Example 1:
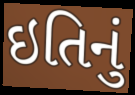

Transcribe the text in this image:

ઇતિનું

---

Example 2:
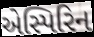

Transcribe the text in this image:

એસ્પિરિન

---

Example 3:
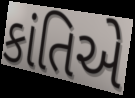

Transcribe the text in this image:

કાંતિએ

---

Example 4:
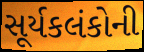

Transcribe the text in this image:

સૂર્યકલંકોની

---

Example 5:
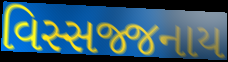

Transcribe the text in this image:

વિસ્સજ્જનાય